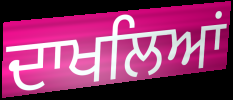
ਦਾਖਲਿਆਂ